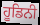
ਹੂਡਿਨੀ